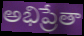
అభిప్రేతా